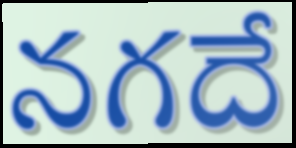
నగదే